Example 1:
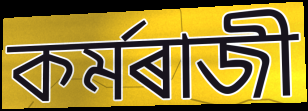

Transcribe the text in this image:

কৰ্মৰাজী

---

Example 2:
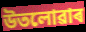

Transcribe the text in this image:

উতলোৱাৰ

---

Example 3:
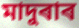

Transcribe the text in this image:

মাদুৰাৰ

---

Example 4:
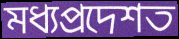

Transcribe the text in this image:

মধ্যপ্ৰদেশত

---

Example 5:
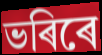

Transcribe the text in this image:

ভৰিৰে